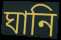
ঘানি